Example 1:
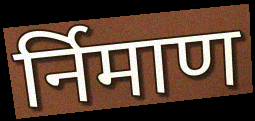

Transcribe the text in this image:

र्निमाण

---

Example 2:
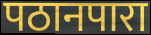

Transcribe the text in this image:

पठानपारा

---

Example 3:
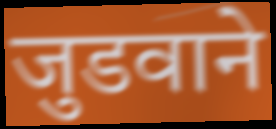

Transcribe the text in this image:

जुडवाने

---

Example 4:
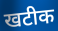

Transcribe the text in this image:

खटीक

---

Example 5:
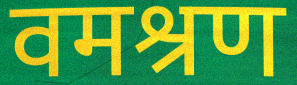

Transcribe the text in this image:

वमश्रण